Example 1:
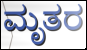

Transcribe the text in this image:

ಮೃತರ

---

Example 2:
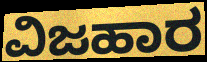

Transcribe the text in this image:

ವಿಜಹಾರ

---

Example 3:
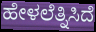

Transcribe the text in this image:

ಹೇಳಲೆತ್ನಿಸಿದೆ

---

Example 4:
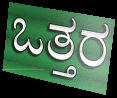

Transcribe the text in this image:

ಒತ್ತರ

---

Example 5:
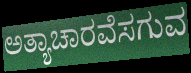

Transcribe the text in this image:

ಅತ್ಯಾಚಾರವೆಸಗುವ